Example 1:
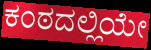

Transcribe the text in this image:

ಕಂಠದಲ್ಲಿಯೇ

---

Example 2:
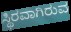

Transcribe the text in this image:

ಸ್ಥಿರವಾಗಿರುವ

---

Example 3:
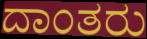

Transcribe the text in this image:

ದಾಂತರು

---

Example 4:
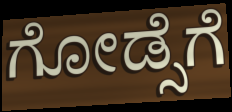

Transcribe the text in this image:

ಗೋಡ್ಸೆಗೆ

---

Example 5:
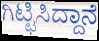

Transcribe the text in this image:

ಗಿಟ್ಟಿಸಿದ್ದಾನೆ